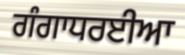
ਗੰਗਾਧਰਈਆ